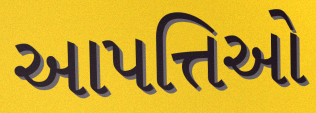
આપત્તિઓ